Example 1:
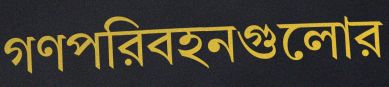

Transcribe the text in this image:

গণপরিবহনগুলোর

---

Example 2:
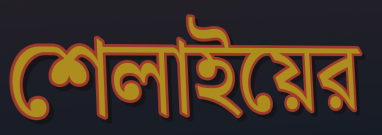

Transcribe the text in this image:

শেলাইয়ের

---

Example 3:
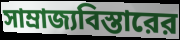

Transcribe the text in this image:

সাম্রাজ্যবিস্তারের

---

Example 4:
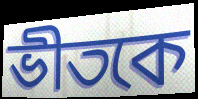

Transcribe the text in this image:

ভীতকে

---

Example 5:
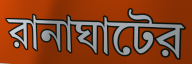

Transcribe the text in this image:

রানাঘাটের